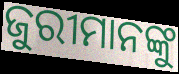
ଜୁରୀମାନଙ୍କୁ